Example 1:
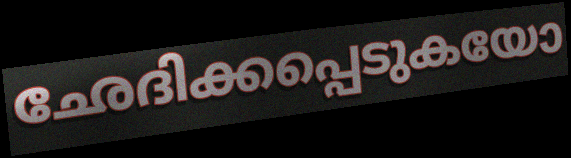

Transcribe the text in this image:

ഛേദിക്കപ്പെടുകയോ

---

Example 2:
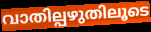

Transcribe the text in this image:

വാതില്പഴുതിലൂടെ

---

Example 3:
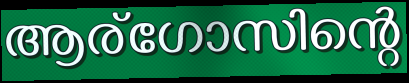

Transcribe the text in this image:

ആര്ഗോസിന്റെ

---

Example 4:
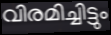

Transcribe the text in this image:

വിരമിച്ചിട്ടും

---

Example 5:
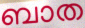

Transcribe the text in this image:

ബാത